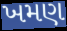
ખમણ